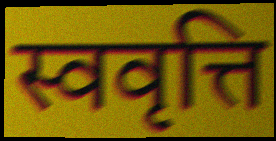
स्ववृत्ति